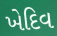
ખેદિવ